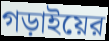
গড়াইয়ের